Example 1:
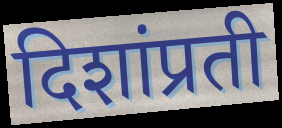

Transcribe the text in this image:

दिशांप्रती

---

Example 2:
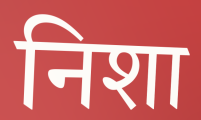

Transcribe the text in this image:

निशा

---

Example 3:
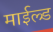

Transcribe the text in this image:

माईल्ड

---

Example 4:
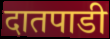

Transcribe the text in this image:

दातपाडी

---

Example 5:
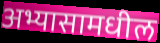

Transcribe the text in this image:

अभ्यासामधील